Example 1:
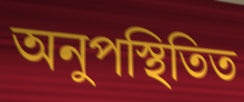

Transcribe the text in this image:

অনুপস্থিতিত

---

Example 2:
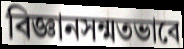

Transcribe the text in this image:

বিজ্ঞানসন্মতভাবে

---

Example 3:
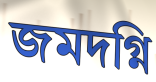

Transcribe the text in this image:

জমদগ্নি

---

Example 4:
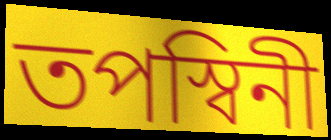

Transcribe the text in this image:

তপস্বিনী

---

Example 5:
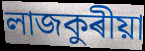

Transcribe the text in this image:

লাজকুৰীয়া